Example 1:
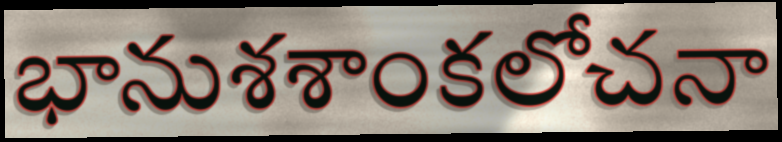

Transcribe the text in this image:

భానుశశాంకలోచనా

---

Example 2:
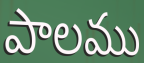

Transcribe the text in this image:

పాలము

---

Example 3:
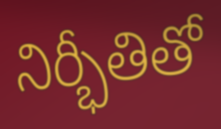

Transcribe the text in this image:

నిర్భీతితో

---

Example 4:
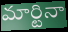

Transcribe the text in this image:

మార్టినా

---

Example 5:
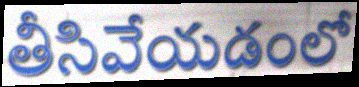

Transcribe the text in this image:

తీసివేయడంలో